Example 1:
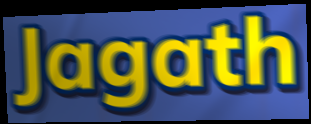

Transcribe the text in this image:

Jagath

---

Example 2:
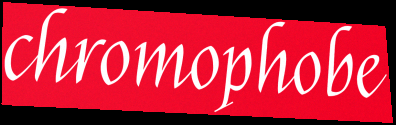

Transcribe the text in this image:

chromophobe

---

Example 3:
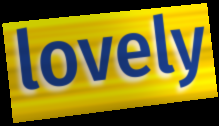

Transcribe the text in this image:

lovely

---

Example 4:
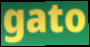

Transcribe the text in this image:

gato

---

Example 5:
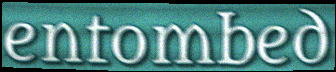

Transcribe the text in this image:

entombed